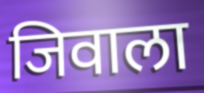
जिवाला